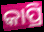
କାପ୍ରି